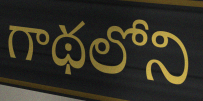
గాథలోని